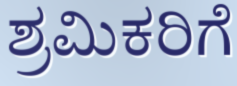
ಶ್ರಮಿಕರಿಗೆ